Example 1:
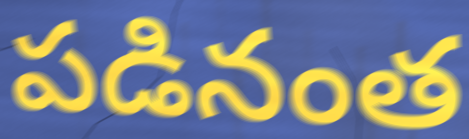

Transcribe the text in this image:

పడినంత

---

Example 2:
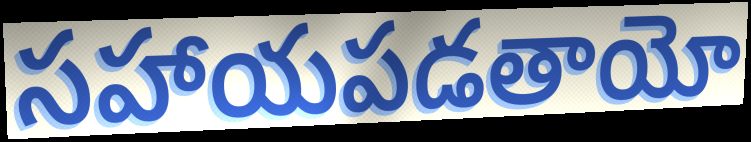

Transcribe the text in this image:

సహాయపడతాయో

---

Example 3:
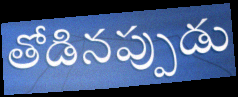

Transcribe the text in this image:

తోడినప్పుడు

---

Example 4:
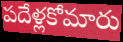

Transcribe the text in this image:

పదేళ్లకోమారు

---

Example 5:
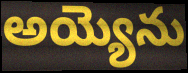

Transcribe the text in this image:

అయ్యెను